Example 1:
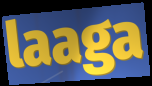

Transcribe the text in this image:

laaga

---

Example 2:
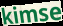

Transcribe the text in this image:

kimse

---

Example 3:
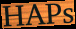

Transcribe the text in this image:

HAPs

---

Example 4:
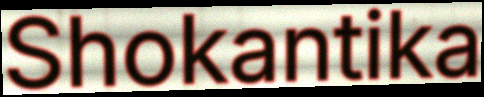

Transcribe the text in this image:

Shokantika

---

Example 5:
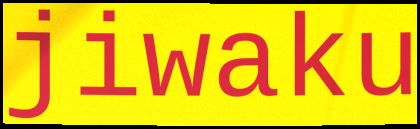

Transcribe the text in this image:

jiwaku